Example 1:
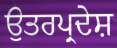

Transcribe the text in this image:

ਉਤਰਪ੍ਰਦੇਸ਼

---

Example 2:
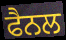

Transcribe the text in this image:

ਫੈਨਲ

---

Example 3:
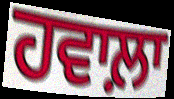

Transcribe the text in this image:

ਹਵਾਲ਼ਾ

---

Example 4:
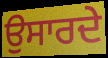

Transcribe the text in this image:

ਉਸਾਰਦੇ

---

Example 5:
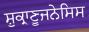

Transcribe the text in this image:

ਸ਼ੁਕ੍ਰਾਣੂਜਨੇਸਿਸ